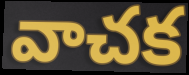
వాచక